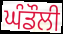
ਘੰਡੌਲੀ